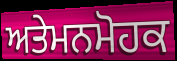
ਅਤੇਮਨਮੋਹਕ